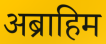
अब्राहिम